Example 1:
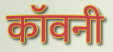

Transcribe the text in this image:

कॉवनी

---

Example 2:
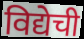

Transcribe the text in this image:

विद्येची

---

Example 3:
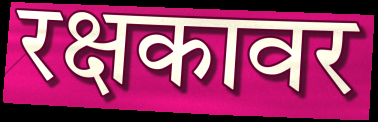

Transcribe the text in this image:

रक्षकावर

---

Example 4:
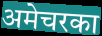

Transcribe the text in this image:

अमेचरका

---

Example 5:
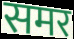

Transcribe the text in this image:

समर